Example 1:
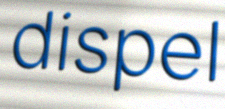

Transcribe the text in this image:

dispel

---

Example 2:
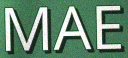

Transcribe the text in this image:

MAE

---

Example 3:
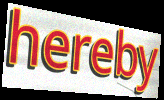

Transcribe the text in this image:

hereby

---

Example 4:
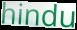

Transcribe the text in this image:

hindu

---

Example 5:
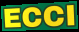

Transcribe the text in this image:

ECCI